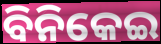
ବିନିକେଇ